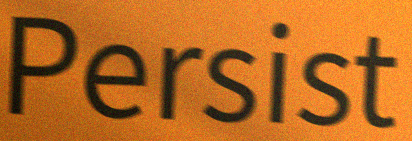
Persist